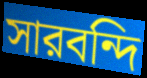
সারবন্দি